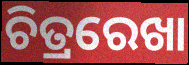
ଚିତ୍ରରେଖା